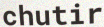
chutir